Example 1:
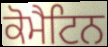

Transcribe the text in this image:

ਕੋਮੈਟਿਨ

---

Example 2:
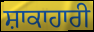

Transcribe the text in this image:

ਸ਼ਾਕਾਹਾਰੀ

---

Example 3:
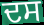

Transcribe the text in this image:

ਦਸ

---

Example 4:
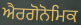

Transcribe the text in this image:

ਐਰਗੋਨੋਮਿਕ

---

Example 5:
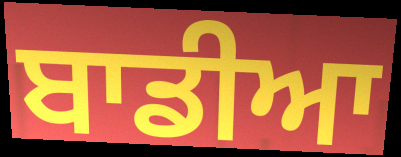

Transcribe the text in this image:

ਬਾਡੀਆ